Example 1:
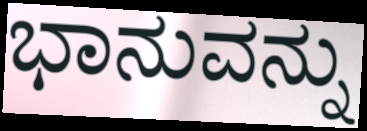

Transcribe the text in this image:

ಭಾನುವನ್ನು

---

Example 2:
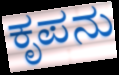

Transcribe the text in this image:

ಕೃಪನು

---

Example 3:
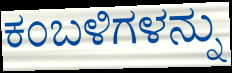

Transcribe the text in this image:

ಕಂಬಳಿಗಳನ್ನು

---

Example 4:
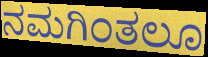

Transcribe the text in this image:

ನಮಗಿಂತಲೂ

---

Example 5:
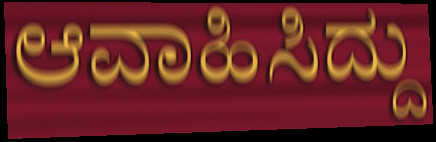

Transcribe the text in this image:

ಆವಾಹಿಸಿದ್ದು